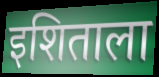
इशिताला